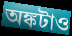
অঙ্কটাও